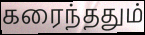
கரைந்ததும்